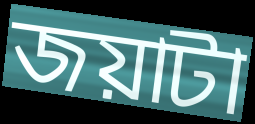
জয়াটা